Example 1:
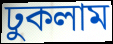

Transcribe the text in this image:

ঢুকলাম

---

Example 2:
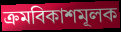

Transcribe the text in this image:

ক্রমবিকাশমূলক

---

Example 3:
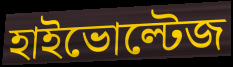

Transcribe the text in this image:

হাইভোল্টেজ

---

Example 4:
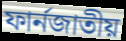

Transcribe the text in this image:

ফার্নজাতীয়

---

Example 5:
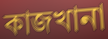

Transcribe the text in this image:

কাজখানা